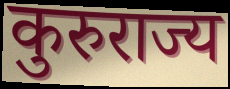
कुरुराज्य